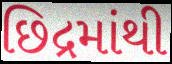
છિદ્રમાંથી